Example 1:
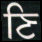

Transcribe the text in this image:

ਣਿ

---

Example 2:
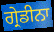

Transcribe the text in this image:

ਗ੍ਰੇਡੀਨਾ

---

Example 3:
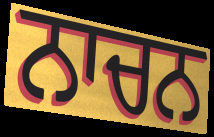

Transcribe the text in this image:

ਨਾਚਨ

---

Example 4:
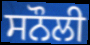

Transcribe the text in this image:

ਸਨੌਲੀ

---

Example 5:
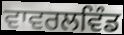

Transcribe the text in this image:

ਵਾਵਰਲਵਿੰਡ